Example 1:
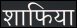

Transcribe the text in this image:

शाफिया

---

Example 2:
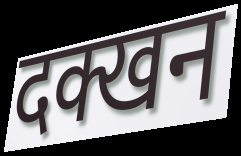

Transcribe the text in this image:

दक्खन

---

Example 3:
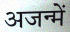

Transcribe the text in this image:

अजन्में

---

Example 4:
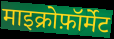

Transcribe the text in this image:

माइक्रोफ़ॉर्मेट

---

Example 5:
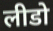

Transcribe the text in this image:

लीडो